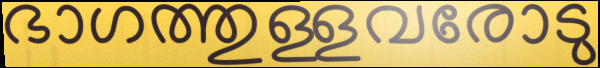
ഭാഗത്തുള്ളവരോടു